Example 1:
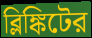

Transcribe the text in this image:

ব্লিঙ্কিটের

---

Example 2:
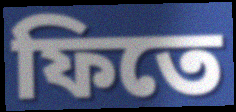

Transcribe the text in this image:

ফিতে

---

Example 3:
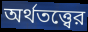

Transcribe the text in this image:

অর্থতত্ত্বের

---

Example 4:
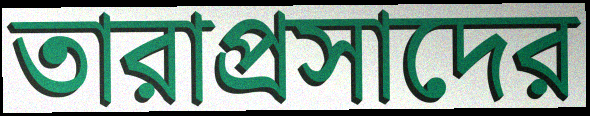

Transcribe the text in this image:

তারাপ্রসাদের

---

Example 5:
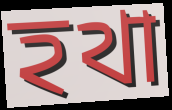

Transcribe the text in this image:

হথা